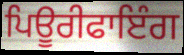
ਪਿਊਰੀਫਾਇੰਗ